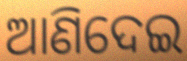
ଆଣିଦେଇ